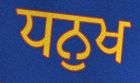
ਧਨੁਖ